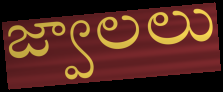
జ్వాలలు